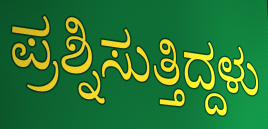
ಪ್ರಶ್ನಿಸುತ್ತಿದ್ದಳು